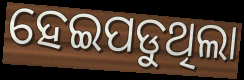
ହେଇପଡୁଥିଲା